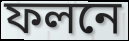
ফলনে